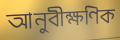
আনুবীক্ষণিক